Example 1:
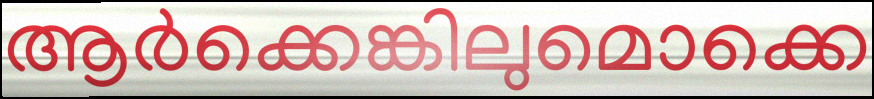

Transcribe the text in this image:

ആർക്കെങ്കിലുമൊക്കെ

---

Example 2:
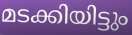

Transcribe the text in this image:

മടക്കിയിട്ടും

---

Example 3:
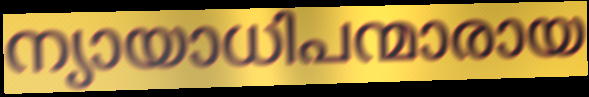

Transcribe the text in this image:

ന്യായാധിപന്മാരായ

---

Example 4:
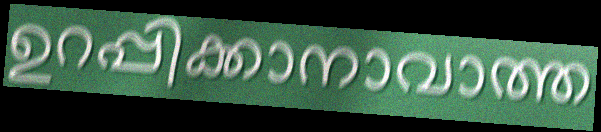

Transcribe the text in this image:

ഉറപ്പിക്കാനാവാത്ത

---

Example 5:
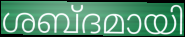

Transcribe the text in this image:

ശബ്ദമായി